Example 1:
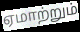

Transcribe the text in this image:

ஏமாற்றும்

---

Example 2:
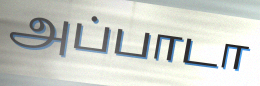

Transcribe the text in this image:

அப்பாடா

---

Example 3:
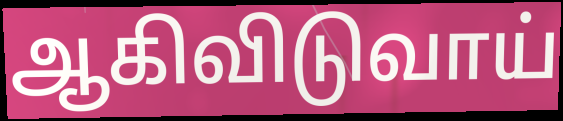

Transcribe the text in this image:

ஆகிவிடுவாய்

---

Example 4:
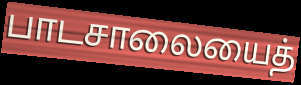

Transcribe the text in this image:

பாடசாலையைத்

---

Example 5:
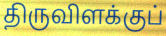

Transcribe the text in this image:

திருவிளக்குப்